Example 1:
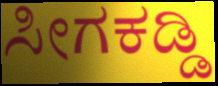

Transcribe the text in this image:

ಸೀಗಕಡ್ಡಿ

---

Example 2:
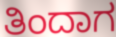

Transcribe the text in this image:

ತಿಂದಾಗ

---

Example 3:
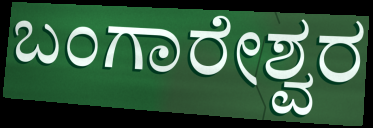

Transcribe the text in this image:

ಬಂಗಾರೇಶ್ವರ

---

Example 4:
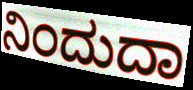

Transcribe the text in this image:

ನಿಂದುದಾ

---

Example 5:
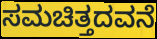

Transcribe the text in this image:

ಸಮಚಿತ್ತದವನೆ